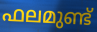
ഫലമുണ്ട്